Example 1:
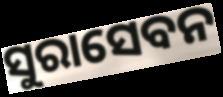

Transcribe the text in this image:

ସୁରାସେବନ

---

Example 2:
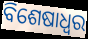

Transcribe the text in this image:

ବିଶେଷାଧ୍ଵର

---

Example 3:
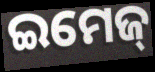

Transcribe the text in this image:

ଇମେଜ୍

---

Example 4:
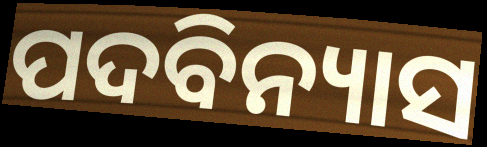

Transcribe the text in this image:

ପଦବିନ୍ୟାସ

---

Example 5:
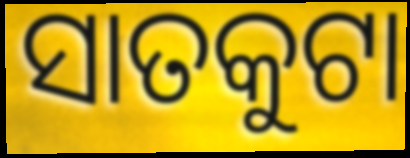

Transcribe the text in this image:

ସାତକୁଟା